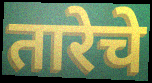
तारेचे